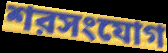
শরসংযোগ